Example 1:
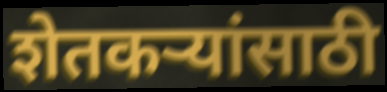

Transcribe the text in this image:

शेतकऱ्यांसाठी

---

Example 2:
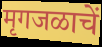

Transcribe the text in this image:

मृगजळाचें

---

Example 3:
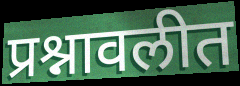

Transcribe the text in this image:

प्रश्नावलीत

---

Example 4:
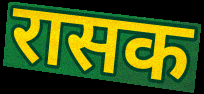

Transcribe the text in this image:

रासक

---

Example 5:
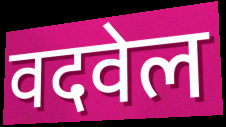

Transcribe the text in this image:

वदवेल